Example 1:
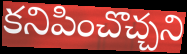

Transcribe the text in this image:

కనిపించొచ్చని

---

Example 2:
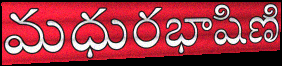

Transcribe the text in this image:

మధురభాషిణి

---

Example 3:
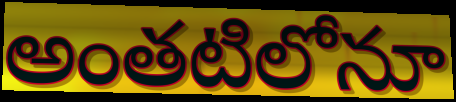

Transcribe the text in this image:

అంతటిలోనూ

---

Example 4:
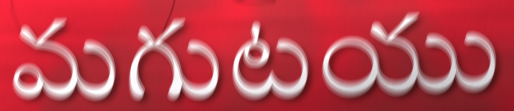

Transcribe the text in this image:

మగుటయు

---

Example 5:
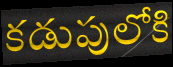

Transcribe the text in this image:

కడుపులోకి